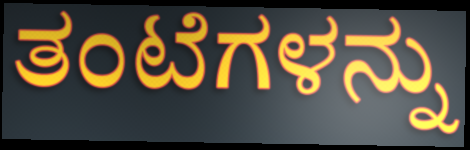
ತಂಟೆಗಳನ್ನು